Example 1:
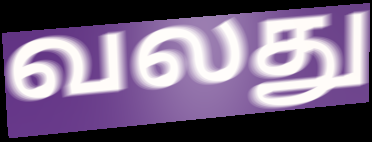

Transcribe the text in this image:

வலது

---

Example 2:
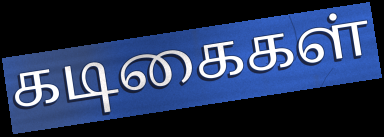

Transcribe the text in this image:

கடிகைகள்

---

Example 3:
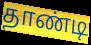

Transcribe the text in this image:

தாண்டி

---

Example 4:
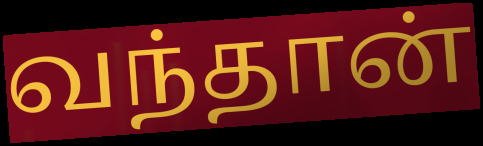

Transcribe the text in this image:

வந்தான்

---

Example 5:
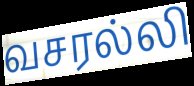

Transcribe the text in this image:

வசரல்லி